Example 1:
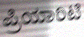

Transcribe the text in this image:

ಪ್ರಿಯಾರಿಟಿ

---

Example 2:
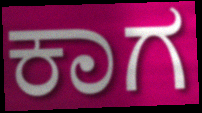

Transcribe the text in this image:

ಕಾಗ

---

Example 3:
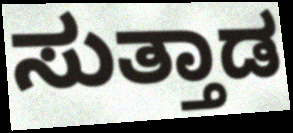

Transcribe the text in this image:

ಸುತ್ತಾಡ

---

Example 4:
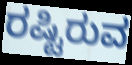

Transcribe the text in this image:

ರಷ್ಟಿರುವ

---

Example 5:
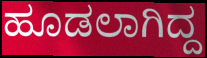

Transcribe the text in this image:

ಹೂಡಲಾಗಿದ್ದ